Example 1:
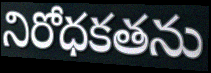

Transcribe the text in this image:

నిరోధకతను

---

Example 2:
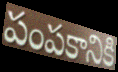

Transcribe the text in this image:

పంపకానికి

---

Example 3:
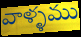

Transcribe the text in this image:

వాళ్ళము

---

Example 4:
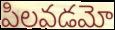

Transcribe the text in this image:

పిలవడమో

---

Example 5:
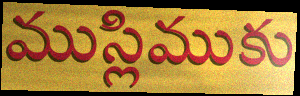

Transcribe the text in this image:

ముస్లిముకు